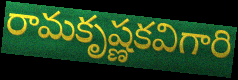
రామకృష్ణకవిగారి